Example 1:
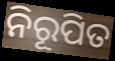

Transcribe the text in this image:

ନିରୂପିତ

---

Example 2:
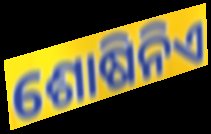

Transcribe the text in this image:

ଶୋଷିନିଏ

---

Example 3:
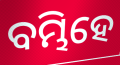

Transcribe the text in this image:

ବମ୍ଭିହେ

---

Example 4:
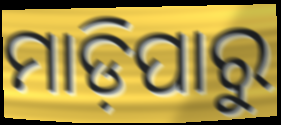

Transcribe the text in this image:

ମାଡ଼ିପାରୁ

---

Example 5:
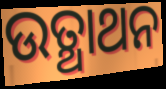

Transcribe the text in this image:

ଉତ୍ଥାଥନ